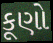
કૂણો